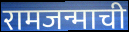
रामजन्माची